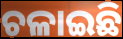
ଚଳାଇଛି